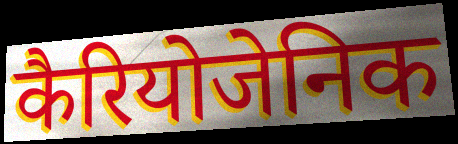
कैरियोजेनिक